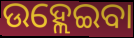
ଉହ୍ଲେଇବା